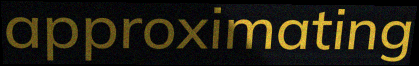
approximating